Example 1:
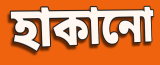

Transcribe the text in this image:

হাকানো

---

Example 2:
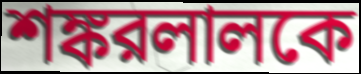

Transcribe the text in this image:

শঙ্করলালকে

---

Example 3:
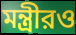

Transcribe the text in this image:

মন্ত্রীরও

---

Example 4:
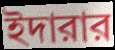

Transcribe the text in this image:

ইদারার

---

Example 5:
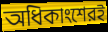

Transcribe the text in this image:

অধিকাংশেরই